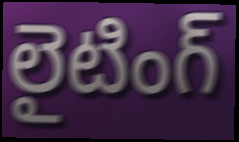
లైటింగ్